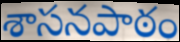
శాసనపాఠం